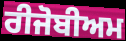
ਰੀਜੋਬੀਅਮ